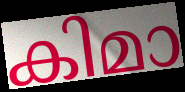
കിമാ